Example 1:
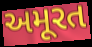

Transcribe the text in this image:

અમૂરત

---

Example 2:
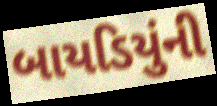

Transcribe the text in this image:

બાયડિયુંની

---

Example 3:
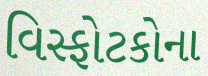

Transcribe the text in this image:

વિસ્ફોટકોના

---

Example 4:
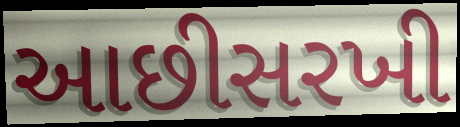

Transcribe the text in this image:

આછીસરખી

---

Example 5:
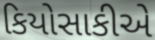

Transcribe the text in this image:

કિયોસાકીએ